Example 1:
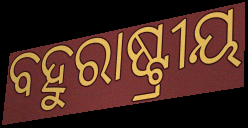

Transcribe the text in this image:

ବହୁରାଷ୍ଟ୍ରୀୟ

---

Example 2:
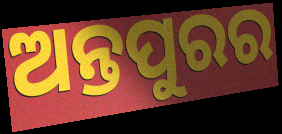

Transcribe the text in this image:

ଅନ୍ତପୁରର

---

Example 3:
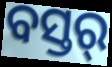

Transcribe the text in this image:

ବସ୍ତର୍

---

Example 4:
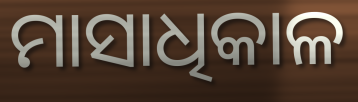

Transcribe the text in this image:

ମାସାଧିକାଳ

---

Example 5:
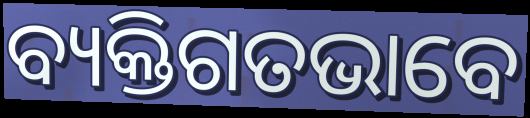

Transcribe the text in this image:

ବ୍ୟକ୍ତିଗତଭାବେ